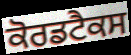
ਕੋਰਡਟੈਕਸ